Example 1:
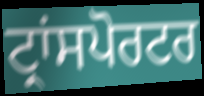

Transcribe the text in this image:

ਟ੍ਰਾਂਸਪੋਰਟਰ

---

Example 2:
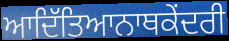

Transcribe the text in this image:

ਆਦਿੱਤਿਆਨਾਥਕੇਂਦਰੀ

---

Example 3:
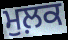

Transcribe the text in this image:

ਮੁਲ਼ਕ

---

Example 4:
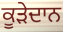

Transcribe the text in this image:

ਕੂੜੇਦਾਨ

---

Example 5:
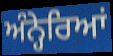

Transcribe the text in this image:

ਅੰਨ੍ਹੇਰਿਆਂ